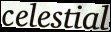
celestial